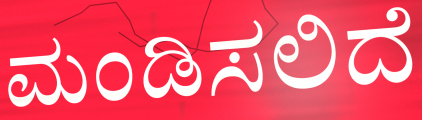
ಮಂಡಿಸಲಿದೆ